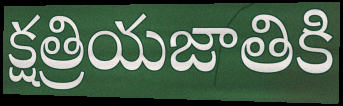
క్షత్రియజాతికి